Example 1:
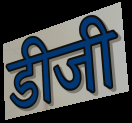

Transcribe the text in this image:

डीजी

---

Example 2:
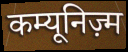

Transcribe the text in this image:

कम्यूनिज़्म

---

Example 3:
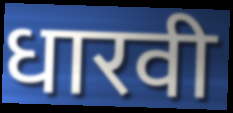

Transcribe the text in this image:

धारवी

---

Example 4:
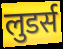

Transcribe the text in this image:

लुडर्स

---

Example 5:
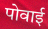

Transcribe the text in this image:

पोवाई